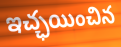
ఇచ్ఛయించిన